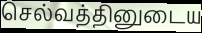
செல்வத்தினுடைய